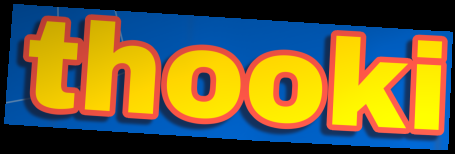
thooki